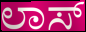
ಲಾಸ್